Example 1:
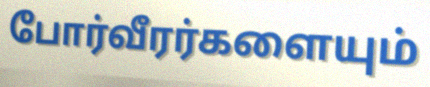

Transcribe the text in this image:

போர்வீரர்களையும்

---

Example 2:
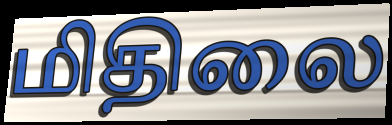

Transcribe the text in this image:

மிதிலை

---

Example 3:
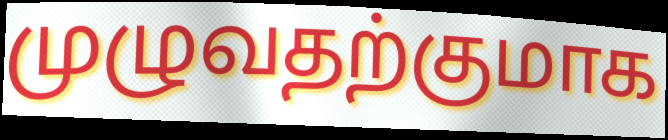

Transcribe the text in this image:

முழுவதற்குமாக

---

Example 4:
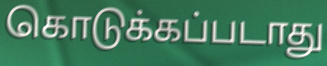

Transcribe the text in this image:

கொடுக்கப்படாது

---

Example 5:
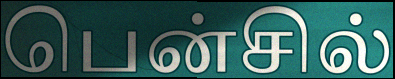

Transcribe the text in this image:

பென்சில்